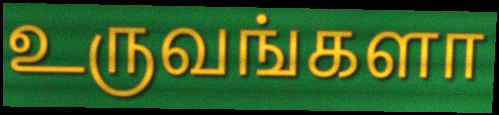
உருவங்களா